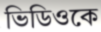
ভিডিওকে